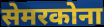
सेमरकोना